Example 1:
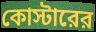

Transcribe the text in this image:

কোস্টারের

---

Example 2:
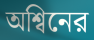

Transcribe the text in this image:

অশ্বিনের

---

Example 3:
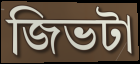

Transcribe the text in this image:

জিভটা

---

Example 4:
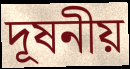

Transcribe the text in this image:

দূষনীয়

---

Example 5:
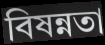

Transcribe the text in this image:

বিষন্নতা